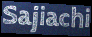
Sajiachi